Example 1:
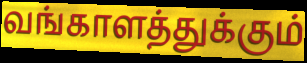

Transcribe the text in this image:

வங்காளத்துக்கும்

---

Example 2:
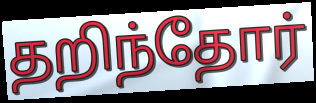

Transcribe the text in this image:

தறிந்தோர்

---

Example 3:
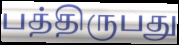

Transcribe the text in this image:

பத்திருபது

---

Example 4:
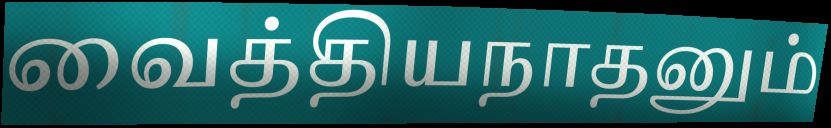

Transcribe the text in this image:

வைத்தியநாதனும்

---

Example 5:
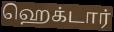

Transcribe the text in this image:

ஹெக்டார்